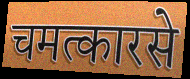
चमत्कारसे